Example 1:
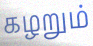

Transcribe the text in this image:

கழறும்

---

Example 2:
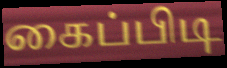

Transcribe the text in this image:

கைப்பிடி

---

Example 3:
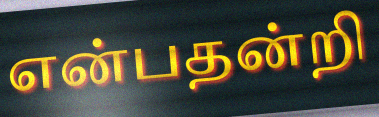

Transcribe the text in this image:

என்பதன்றி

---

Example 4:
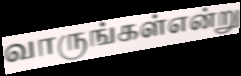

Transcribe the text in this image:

வாருங்கள்என்று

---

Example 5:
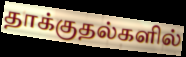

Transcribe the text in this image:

தாக்குதல்களில்